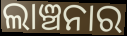
ଲାଞ୍ଚନାର